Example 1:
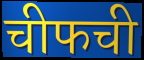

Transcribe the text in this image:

चीफची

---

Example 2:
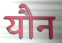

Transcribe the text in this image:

यौन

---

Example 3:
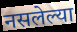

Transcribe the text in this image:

नसलेल्या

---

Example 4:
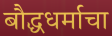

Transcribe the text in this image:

बौद्धधर्माचा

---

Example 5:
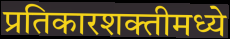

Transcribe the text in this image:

प्रतिकारशक्तीमध्ये